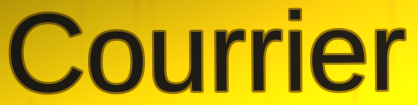
Courrier